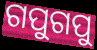
ଗପୁଗପୁ